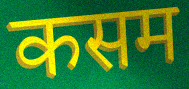
कसम